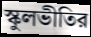
স্কুলভীতির